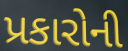
પ્રકારોની